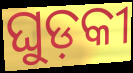
ଘୁଡ଼କୀ